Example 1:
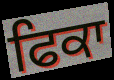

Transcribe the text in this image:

ਫਿਕਾ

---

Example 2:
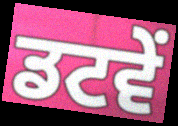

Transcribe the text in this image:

ਡਟਵੇਂ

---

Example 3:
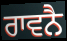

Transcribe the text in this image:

ਰਾਵਨੈ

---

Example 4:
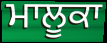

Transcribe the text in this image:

ਮਾਲੂਕਾ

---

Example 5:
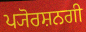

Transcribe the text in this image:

ਪ੍ਯੋਰਸ਼ਨਗੀ